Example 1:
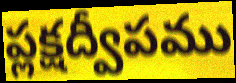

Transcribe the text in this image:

ప్లక్షద్వీపము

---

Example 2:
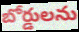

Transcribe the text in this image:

బోర్డులను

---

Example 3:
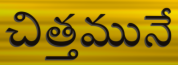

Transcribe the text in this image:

చిత్తమునే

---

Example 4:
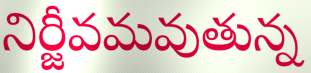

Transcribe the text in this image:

నిర్జీవమవుతున్న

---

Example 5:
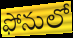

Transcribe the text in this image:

ఫోనులో